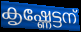
കൃഷ്ണേട്ടന്